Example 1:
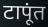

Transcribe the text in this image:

टापूंत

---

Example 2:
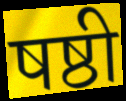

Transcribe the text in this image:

षष्ठी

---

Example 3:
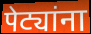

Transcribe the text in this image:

पेट्यांना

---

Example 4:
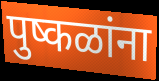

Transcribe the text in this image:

पुष्कळांना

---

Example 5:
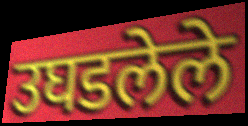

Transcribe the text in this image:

उघडलेले